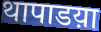
थापाडय़ा